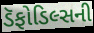
ડૅફોડિલ્સની